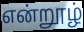
என்றூழ்